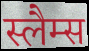
स्लैम्स